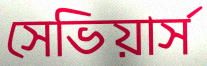
সেভিয়ার্স